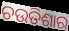
ଚଉତିଶାର